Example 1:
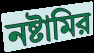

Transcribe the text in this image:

নষ্টামির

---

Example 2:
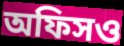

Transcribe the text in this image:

অফিসও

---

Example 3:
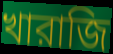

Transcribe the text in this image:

খারাজি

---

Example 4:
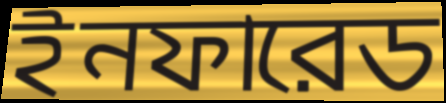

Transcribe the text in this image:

ইনফারেড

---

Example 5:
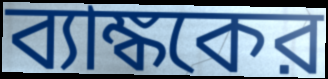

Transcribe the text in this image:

ব্যাঙ্ককের